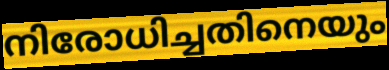
നിരോധിച്ചതിനെയും